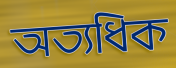
অত্যধিক